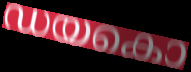
ഡയകൊ